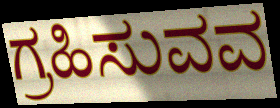
ಗ್ರಹಿಸುವವ